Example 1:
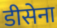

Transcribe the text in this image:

डीसेना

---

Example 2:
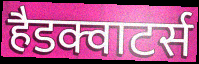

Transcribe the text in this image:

हैडक्वाटर्स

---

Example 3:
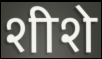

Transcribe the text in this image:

शीशे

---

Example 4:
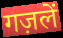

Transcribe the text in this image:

गज़लें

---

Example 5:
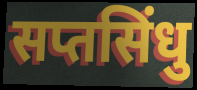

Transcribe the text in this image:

सप्तसिंधु